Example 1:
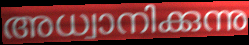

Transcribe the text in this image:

അധ്വാനിക്കുന്നു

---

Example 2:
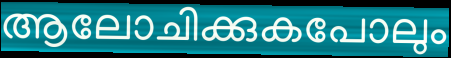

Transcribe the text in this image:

ആലോചിക്കുകപോലും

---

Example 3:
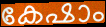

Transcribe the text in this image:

കേഷാം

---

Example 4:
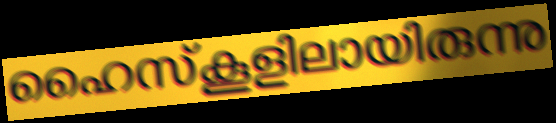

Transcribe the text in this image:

ഹൈസ്‌കൂളിലായിരുന്നു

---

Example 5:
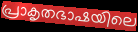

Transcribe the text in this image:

പ്രാകൃതഭാഷയിലെ